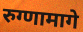
रुग्णामागे